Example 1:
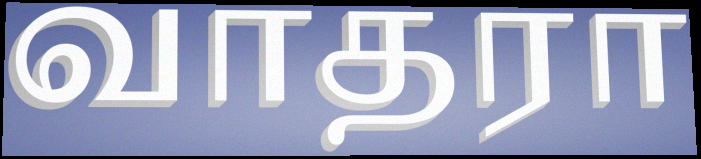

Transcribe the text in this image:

வாதரா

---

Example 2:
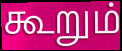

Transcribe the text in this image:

கூறும்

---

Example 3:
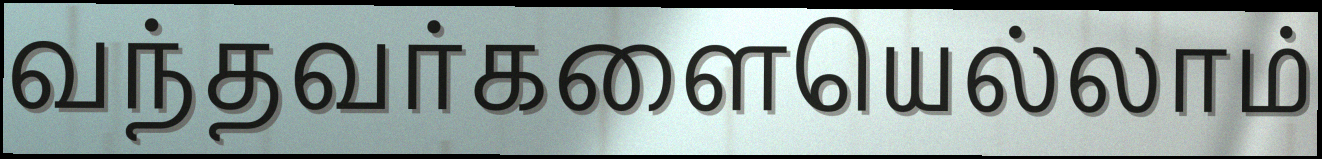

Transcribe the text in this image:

வந்தவர்களையெல்லாம்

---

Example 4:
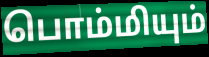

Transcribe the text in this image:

பொம்மியும்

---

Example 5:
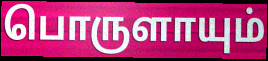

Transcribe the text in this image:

பொருளாயும்